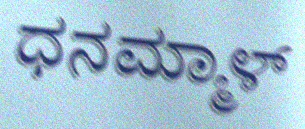
ಧನಮ್ಮಾಳ್